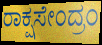
ರಾಕ್ಷಸೇಂದ್ರಂ